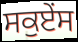
ਸਕੁਏਂਸ